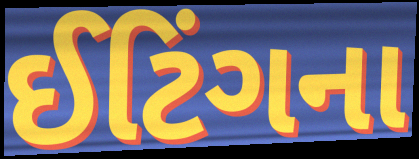
ઈટિંગના